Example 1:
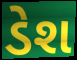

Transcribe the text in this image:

ડેશ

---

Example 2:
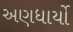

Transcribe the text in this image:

અણધાર્યો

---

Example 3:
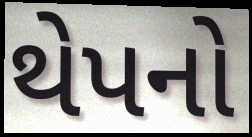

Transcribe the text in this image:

થેપનો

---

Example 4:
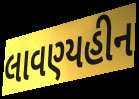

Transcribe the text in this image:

લાવણ્યહીન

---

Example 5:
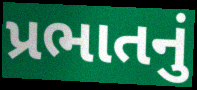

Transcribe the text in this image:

પ્રભાતનું